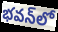
భవన్‌లో